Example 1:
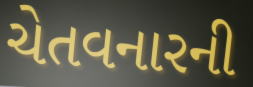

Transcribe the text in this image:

ચેતવનારની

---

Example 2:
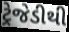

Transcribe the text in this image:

ટ્રેજેડીથી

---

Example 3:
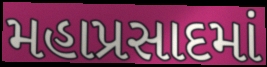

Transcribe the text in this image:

મહાપ્રસાદમાં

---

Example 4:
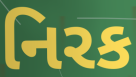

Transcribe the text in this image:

નિરક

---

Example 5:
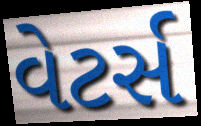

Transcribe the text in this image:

વેટર્સ